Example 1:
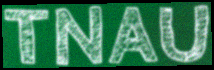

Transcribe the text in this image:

TNAU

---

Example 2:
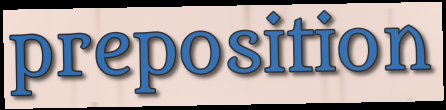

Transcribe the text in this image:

preposition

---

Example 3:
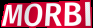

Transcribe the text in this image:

MORBI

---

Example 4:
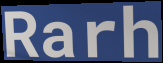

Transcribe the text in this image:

Rarh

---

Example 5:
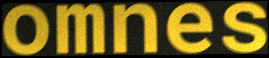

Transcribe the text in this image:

omnes